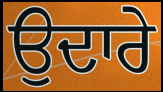
ਉਦਾਰੇ